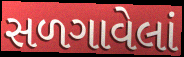
સળગાવેલાં